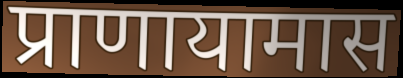
प्राणायामास